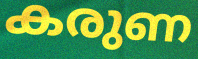
കരുണ